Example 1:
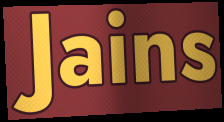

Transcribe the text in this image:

Jains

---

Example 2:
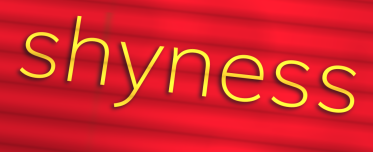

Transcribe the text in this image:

shyness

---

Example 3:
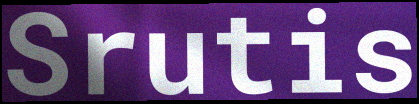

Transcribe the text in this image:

Srutis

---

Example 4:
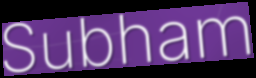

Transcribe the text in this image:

Subham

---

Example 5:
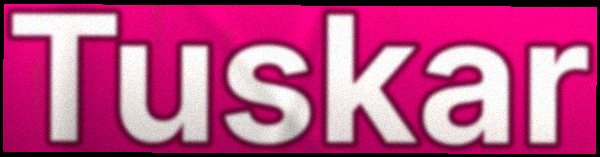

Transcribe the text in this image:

Tuskar